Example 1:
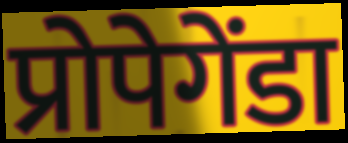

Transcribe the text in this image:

प्रोपेगेंडा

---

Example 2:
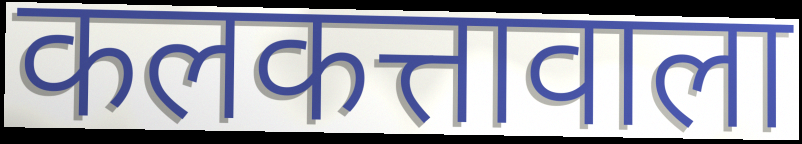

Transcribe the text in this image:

कलकत्तावाला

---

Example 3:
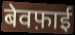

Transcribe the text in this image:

बेवफ़ाई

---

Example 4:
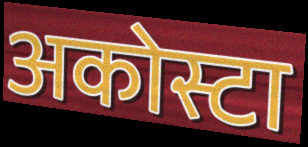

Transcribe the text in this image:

अकोस्टा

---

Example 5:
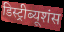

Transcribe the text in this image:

डिस्ट्रीब्यूशंस